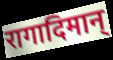
रागादिमान्